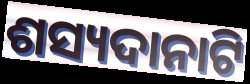
ଶସ୍ୟଦାନାଟି